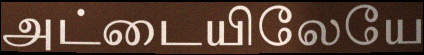
அட்டையிலேயே